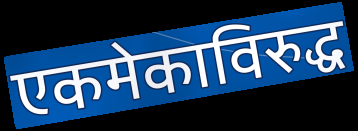
एकमेकाविरुद्ध